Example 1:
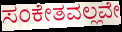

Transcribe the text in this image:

ಸಂಕೇತವಲ್ಲವೇ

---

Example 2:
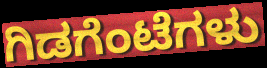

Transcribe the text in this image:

ಗಿಡಗೆಂಟೆಗಳು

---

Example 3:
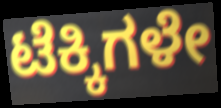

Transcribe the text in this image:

ಟೆಕ್ಕಿಗಳೇ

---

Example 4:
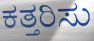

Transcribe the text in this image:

ಕತ್ತರಿಸು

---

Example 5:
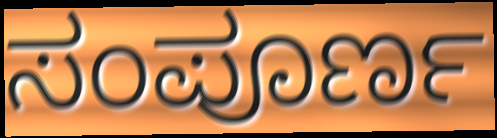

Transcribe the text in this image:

ಸಂಪೂರ್ಣ